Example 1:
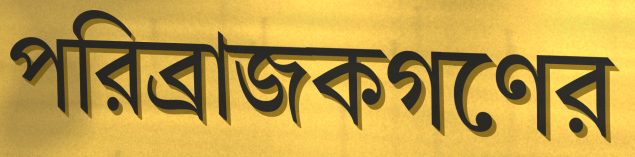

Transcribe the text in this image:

পরিব্রাজকগণের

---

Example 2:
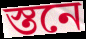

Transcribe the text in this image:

স্তনে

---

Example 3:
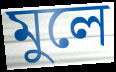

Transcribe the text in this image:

মুলে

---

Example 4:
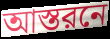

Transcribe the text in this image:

আস্তরনে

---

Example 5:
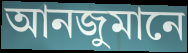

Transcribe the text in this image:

আনজুমানে